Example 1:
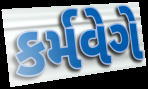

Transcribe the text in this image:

કર્મવેગે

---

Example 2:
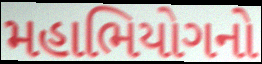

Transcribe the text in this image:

મહાભિયોગનો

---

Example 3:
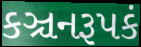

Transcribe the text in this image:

કઞ્ચનરૂપકં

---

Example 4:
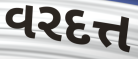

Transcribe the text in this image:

વરદત્ત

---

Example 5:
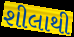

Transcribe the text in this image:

શીલાથી